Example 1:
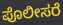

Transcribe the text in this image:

ಪೊಲೀಸರೆ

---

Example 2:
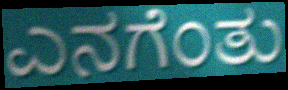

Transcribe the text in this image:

ಎನಗೆಂತು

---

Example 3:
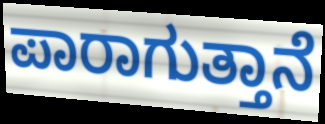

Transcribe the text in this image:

ಪಾರಾಗುತ್ತಾನೆ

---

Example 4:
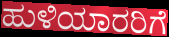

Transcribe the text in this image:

ಹುಳಿಯಾರರಿಗೆ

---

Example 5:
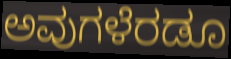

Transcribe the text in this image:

ಅವುಗಳೆರಡೂ